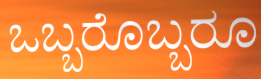
ಒಬ್ಬರೊಬ್ಬರೂ